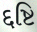
દ્દષ્ટિ